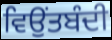
ਵਿਉਂਤਬੰਦੀ